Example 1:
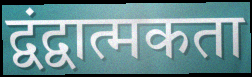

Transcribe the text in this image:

द्वंद्वात्मकता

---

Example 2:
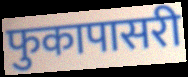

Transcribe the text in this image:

फुकापासरी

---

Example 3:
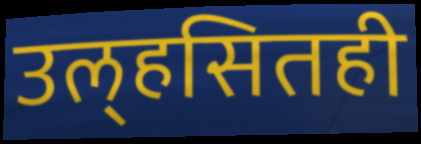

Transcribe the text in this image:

उल्हसितही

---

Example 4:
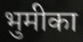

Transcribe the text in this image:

भुमीका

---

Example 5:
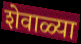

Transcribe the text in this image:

शेवाळ्या